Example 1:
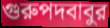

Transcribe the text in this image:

গুরুপদবাবুর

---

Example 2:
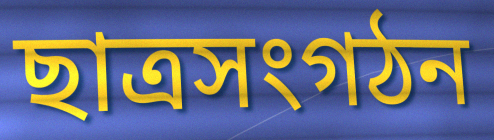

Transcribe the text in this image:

ছাত্রসংগঠন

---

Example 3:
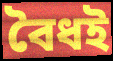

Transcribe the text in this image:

বৈধই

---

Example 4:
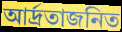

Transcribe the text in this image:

আর্দ্রতাজনিত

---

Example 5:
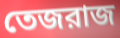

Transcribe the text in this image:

তেজরাজ